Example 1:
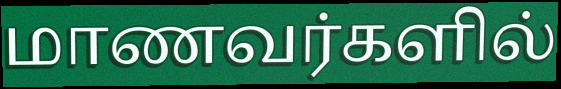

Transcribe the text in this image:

மாணவர்களில்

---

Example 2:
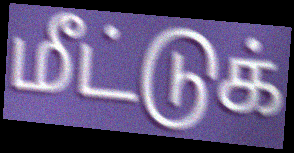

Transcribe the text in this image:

மீட்டுக்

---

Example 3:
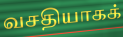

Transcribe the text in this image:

வசதியாகக்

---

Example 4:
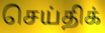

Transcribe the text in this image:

செய்திக்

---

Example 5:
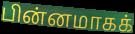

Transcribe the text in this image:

பின்னமாகக்